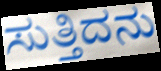
ಸುತ್ತಿದನು